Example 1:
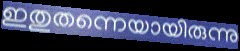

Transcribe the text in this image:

ഇതുതന്നെയായിരുന്നു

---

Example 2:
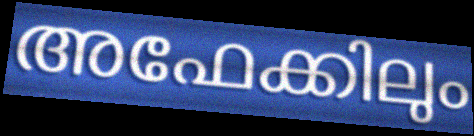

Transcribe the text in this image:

അഫേക്കിലും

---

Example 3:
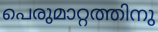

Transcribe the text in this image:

പെരുമാറ്റത്തിനു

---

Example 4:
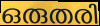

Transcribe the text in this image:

ഒരുതരി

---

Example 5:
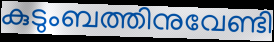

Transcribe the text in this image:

കുടുംബത്തിനുവേണ്ടി